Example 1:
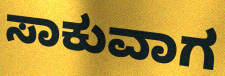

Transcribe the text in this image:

ಸಾಕುವಾಗ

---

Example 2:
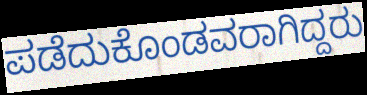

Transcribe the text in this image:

ಪಡೆದುಕೊಂಡವರಾಗಿದ್ದರು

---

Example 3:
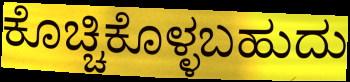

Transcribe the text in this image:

ಕೊಚ್ಚಿಕೊಳ್ಳಬಹುದು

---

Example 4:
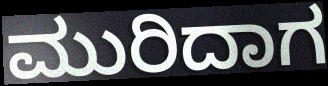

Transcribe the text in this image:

ಮುರಿದಾಗ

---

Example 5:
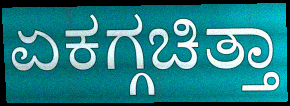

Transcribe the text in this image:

ಏಕಗ್ಗಚಿತ್ತಾ